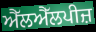
ਐੱਲਐੱਲਪੀਜ਼